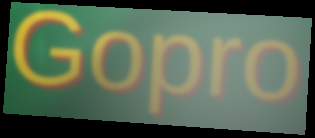
Gopro